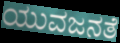
ಯುವಜನತೆ